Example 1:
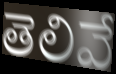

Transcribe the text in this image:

తెలివే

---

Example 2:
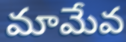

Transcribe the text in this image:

మామేవ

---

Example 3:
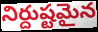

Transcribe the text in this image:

నిర్దుష్టమైన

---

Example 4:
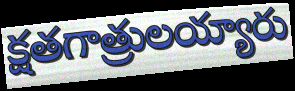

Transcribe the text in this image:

క్షతగాత్రులయ్యారు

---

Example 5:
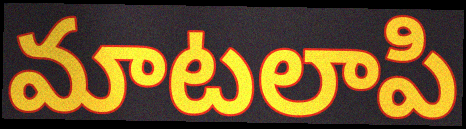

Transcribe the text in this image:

మాటలాపి